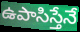
ఉపాసిస్తేనే